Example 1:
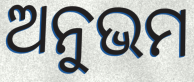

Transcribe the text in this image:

ଅନୁଭମ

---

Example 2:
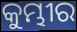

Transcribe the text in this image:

କୁମ୍ଭୀର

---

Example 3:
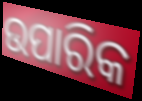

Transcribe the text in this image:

ଉପାରିକ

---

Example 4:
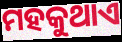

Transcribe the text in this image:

ମହକୁଥାଏ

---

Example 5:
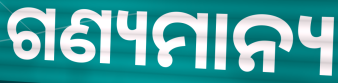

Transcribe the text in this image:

ଗଣ୍ୟମାନ୍ୟ